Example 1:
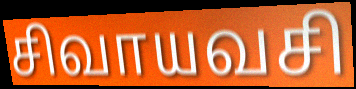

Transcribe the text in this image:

சிவாயவசி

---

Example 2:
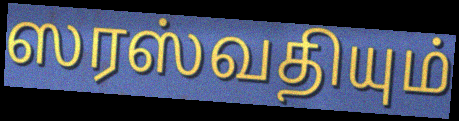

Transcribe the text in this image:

ஸரஸ்வதியும்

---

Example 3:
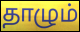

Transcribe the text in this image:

தாழும்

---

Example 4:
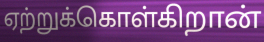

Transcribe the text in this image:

ஏற்றுக்கொள்கிறான்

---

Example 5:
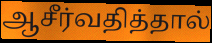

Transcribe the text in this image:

ஆசீர்வதித்தால்